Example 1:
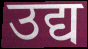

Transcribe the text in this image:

उद्य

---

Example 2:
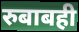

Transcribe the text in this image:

रुबाबही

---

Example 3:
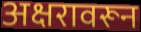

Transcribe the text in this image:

अक्षरावरून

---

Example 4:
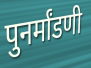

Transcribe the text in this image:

पुनर्मांडणी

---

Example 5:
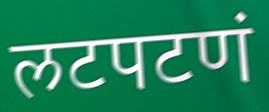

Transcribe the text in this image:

लटपटणं